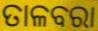
ତାଳବରା